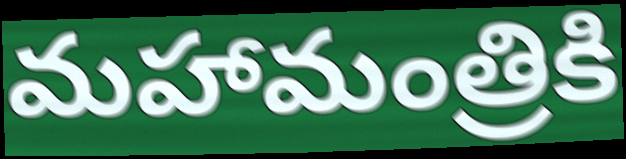
మహామంత్రికి